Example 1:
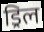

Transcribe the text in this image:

ड्रिल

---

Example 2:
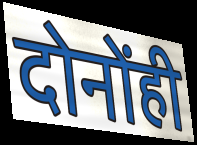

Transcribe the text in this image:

दोनोंही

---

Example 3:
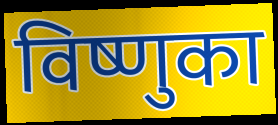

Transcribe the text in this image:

विष्णुका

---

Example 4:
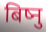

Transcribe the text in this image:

बिष्नु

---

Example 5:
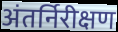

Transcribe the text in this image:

अंतर्निरीक्षण